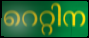
റെറ്റിന